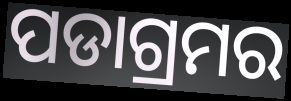
ପଡାଗ୍ରମର